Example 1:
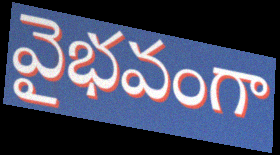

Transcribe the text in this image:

వైభవంగా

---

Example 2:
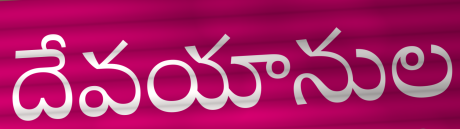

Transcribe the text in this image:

దేవయానుల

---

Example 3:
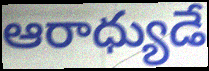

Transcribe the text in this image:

ఆరాధ్యుడే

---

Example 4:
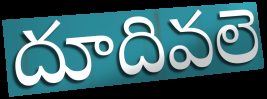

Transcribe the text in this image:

దూదివలె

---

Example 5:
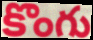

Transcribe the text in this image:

కొంగు